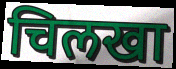
चिलखा